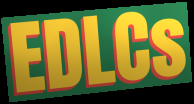
EDLCs